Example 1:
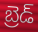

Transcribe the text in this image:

బ్రెడ్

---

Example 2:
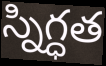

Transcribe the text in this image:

స్నిగ్ధత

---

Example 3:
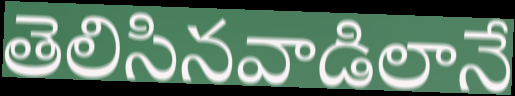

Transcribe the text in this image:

తెలిసినవాడిలానే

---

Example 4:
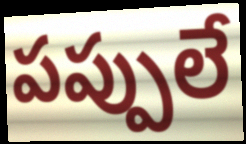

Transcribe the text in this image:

పప్పులే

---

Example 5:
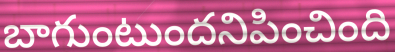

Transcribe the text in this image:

బాగుంటుందనిపించింది